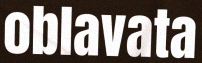
oblavata